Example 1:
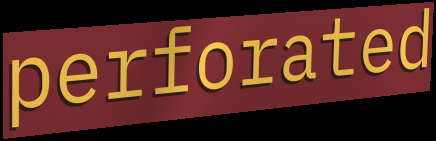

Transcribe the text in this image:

perforated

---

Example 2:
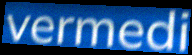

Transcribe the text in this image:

vermedi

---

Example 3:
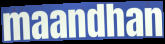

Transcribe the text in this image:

maandhan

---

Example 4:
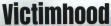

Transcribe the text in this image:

Victimhood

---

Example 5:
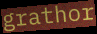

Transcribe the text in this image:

grathor